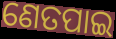
ଣେତପାଇ